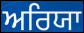
ਅਰਿਯਾ